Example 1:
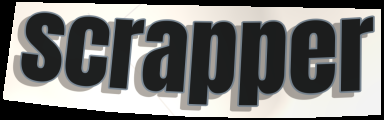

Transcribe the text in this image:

scrapper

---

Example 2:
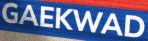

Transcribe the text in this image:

GAEKWAD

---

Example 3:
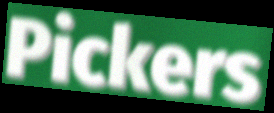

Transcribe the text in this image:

Pickers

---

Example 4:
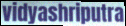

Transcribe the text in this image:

vidyashriputra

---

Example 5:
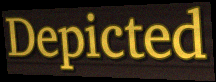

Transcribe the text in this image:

Depicted